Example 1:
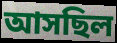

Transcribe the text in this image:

আসছিল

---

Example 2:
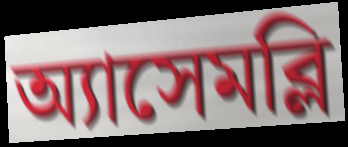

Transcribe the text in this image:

অ্যাসেমব্লি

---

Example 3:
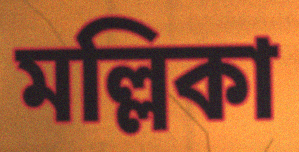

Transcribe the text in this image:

মল্লিকা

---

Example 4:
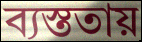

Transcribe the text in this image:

ব্যস্ততায়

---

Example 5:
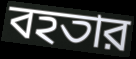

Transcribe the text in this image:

বহতার